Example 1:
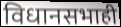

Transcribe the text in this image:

विधानसभाही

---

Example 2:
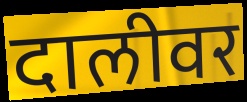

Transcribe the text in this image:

दालीवर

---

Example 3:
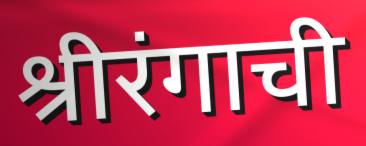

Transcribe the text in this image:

श्रीरंगाची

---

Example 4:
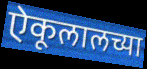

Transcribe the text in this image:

ऐकूलालच्या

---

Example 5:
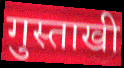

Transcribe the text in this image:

गुस्ताखी